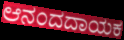
ಆನಂದದಾಯಕ